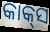
କାକ୍‌ସ